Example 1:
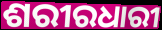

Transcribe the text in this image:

ଶରୀରଧାରୀ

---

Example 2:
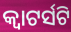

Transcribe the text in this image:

କ୍ୱାଟର୍ସଟି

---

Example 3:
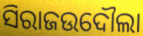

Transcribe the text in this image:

ସିରାଜଉଦୌଲା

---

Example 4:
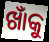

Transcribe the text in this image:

ଖାଁକୁ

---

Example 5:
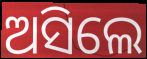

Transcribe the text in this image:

ଅସିଲେ